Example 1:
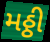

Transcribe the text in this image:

મઠ્ઠી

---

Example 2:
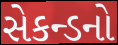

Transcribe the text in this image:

સેકન્ડનો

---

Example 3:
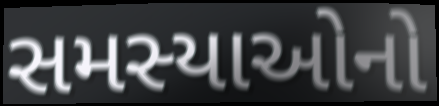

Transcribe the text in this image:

સમસ્યાઓનો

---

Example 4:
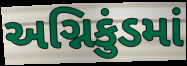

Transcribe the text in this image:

અગ્નિકુંડમાં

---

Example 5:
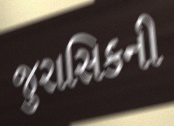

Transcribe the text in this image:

જુરાસિકની